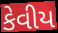
કેવીય